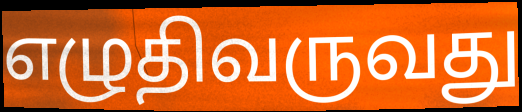
எழுதிவருவது